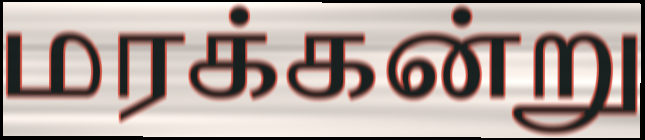
மரக்கன்று